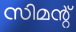
സിമന്റ്